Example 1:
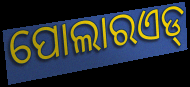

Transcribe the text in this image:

ପୋଲାରଏଡ୍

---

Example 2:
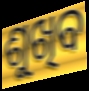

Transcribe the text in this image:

ଶୁଖିବ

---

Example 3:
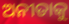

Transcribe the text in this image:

ଅନୀତାକୁ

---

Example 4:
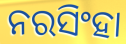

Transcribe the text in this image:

ନରସିଂହା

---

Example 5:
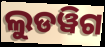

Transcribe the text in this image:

ଲୁଡୱିଗ